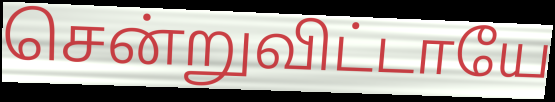
சென்றுவிட்டாயே